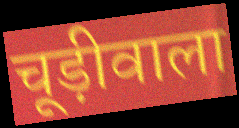
चूड़ीवाला